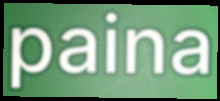
paina